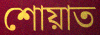
শোয়াত